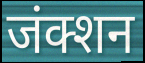
जंक्शन